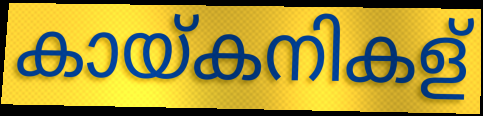
കായ്കനികള്